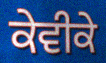
ਕੇਵੀਕੇ